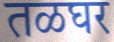
तळघर